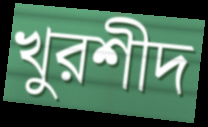
খুরশীদ